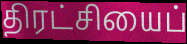
திரட்சியைப்